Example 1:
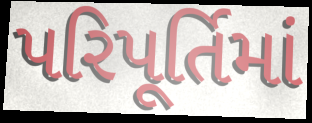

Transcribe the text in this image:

પરિપૂર્તિમાં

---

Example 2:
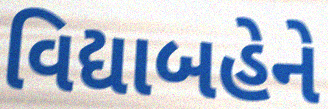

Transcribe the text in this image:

વિદ્યાબહેને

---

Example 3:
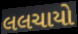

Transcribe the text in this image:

લલચાયો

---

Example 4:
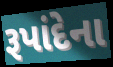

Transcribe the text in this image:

રૂપાંદેના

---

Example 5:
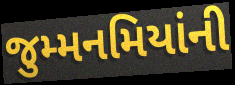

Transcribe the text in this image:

જુમ્મનમિયાંની